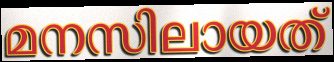
മനസിലായത്